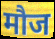
मौज